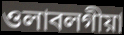
ওলাবলগীয়া